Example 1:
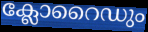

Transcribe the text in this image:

ക്ലോറൈഡും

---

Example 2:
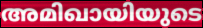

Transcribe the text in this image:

അമിഖായിയുടെ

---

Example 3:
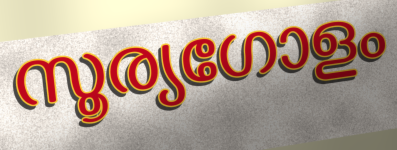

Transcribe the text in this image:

സൂര്യഗോളം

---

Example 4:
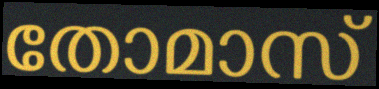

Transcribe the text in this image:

തോമാസ്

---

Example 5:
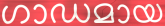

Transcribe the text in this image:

ഗാഡമായ